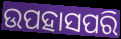
ଉପହାସପରି